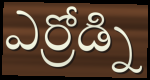
ఎర్రోడ్ని